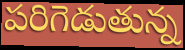
పరిగెడుతున్న